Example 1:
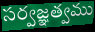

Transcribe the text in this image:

సర్వజ్ఞత్వము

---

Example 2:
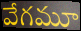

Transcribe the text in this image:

వేగమూ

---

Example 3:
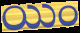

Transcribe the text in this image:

యిం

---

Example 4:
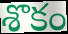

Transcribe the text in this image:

శొకం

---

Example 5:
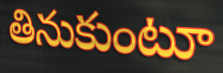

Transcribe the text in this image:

తినుకుంటూ